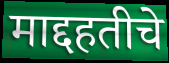
माद्दहतीचे